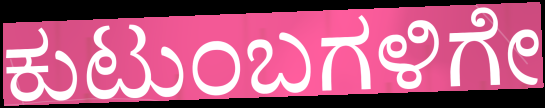
ಕುಟುಂಬಗಳಿಗೇ